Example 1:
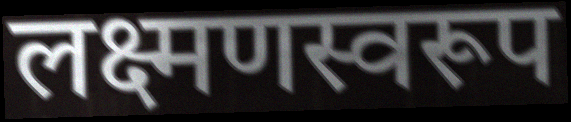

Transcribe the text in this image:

लक्ष्मणस्वरूप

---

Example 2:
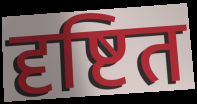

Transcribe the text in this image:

दृष्टित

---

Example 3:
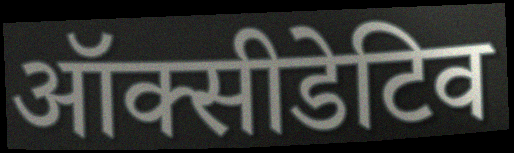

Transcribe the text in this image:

ऑक्सीडेटिव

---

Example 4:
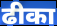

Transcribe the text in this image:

ढीका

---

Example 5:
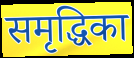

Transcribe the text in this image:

समृद्धिका